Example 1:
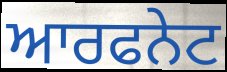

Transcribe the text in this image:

ਆਰਫਨੇਟ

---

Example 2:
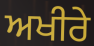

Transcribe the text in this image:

ਅਖੀਰੇ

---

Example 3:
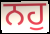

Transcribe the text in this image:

ਨਹੁ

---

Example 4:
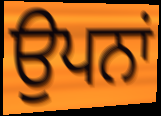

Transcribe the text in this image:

ਉਪਨਾਂ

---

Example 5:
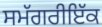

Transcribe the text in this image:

ਸਮੱਗਰੀਇੱਕ